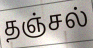
தஞ்சல்